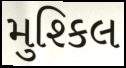
મુશ્કિલ